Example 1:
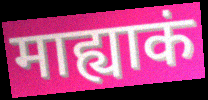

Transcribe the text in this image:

माह्याकं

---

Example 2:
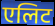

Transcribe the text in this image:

एलिट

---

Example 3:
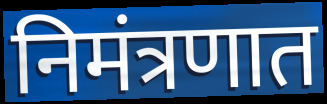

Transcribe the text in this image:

निमंत्रणात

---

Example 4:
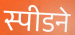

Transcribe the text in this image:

स्पीडने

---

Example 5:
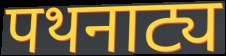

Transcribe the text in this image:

पथनाट्य